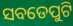
ସବଡେପୁଟି